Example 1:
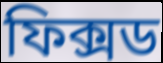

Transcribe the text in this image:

ফিক্সড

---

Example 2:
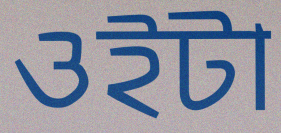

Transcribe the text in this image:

ওইটা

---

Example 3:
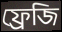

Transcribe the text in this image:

ফ্রেজি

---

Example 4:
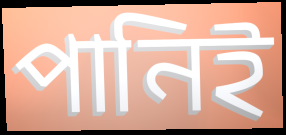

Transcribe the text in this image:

পানিই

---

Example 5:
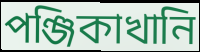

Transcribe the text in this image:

পঞ্জিকাখানি